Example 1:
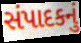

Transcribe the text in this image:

સંપાદકનું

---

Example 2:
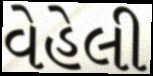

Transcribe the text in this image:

વેહેલી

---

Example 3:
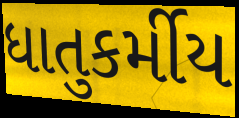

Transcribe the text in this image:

ધાતુકર્મીય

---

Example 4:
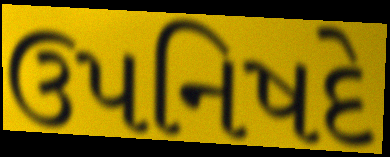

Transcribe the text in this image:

ઉપનિષદે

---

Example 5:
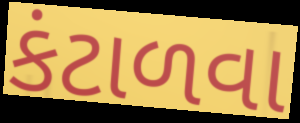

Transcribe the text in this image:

કંટાળવા